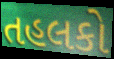
તહલકો